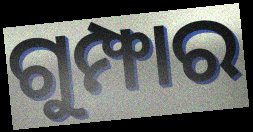
ଗୁମ୍ଫାର